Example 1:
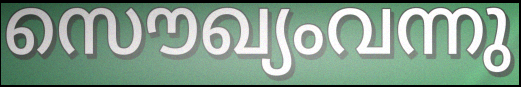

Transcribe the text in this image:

സൌഖ്യംവന്നു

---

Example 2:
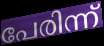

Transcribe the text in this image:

പേരിന്ന്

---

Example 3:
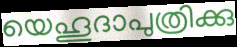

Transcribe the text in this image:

യെഹൂദാപുത്രിക്കു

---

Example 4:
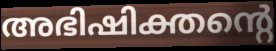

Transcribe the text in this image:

അഭിഷിക്തന്റെ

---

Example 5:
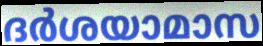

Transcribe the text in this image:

ദർശയാമാസ